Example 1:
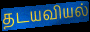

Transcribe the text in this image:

தடயவியல்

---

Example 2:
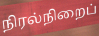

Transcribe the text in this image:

நிரல்நிறைப்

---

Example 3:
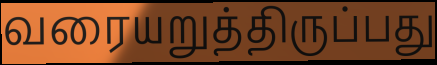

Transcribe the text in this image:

வரையறுத்திருப்பது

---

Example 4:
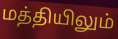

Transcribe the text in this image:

மத்தியிலும்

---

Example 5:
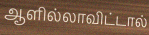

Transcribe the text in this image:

ஆளில்லாவிட்டால்